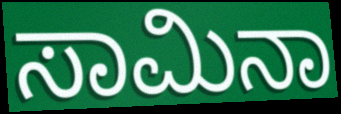
ಸಾಮಿನಾ